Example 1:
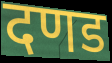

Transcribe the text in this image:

दणड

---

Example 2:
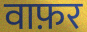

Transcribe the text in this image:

वाफ़र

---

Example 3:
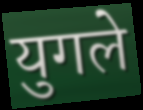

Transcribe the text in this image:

युगले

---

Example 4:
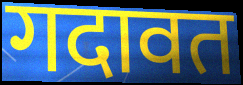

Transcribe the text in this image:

गदावत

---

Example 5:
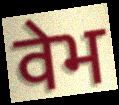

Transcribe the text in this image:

वेभ